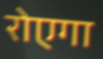
रोएगा